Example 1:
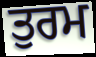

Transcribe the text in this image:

ਤੁਰਮ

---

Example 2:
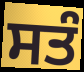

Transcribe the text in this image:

ਸਤੰ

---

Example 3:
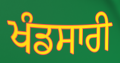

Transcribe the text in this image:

ਖੰਡਸਾਰੀ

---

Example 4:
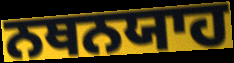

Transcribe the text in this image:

ਨਥਨਯਾਹ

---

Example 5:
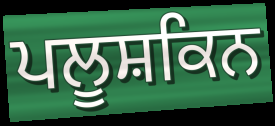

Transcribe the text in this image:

ਪਲੂਸ਼ਕਿਨ